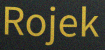
Rojek